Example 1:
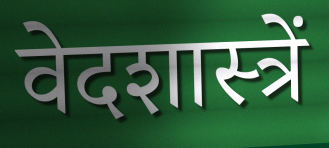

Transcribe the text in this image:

वेदशास्त्रें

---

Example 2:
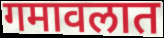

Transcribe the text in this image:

गमावलात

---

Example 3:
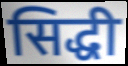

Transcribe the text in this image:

सिद्धी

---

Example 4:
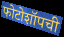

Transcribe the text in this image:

फोटोशॉपची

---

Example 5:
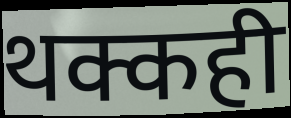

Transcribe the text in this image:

थक्कही